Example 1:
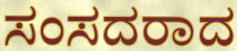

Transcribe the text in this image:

ಸಂಸದರಾದ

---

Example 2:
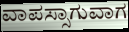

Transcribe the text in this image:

ವಾಪಸ್ಸಾಗುವಾಗ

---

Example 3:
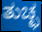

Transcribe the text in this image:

ತುಚ್ಛ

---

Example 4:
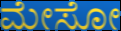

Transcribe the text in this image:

ಮೇಸೋ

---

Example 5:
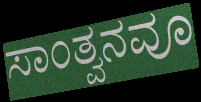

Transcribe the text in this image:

ಸಾಂತ್ವನವೂ